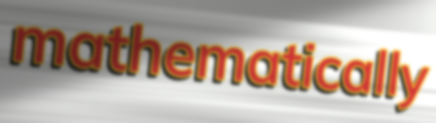
mathematically